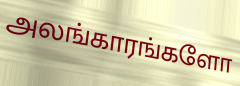
அலங்காரங்களோ